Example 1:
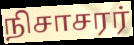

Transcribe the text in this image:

நிசாசரர்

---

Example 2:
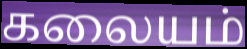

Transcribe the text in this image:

கலையம்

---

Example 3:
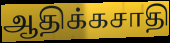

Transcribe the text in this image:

ஆதிக்கசாதி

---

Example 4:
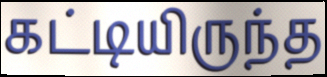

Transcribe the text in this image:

கட்டியிருந்த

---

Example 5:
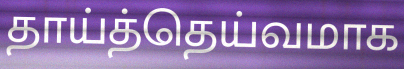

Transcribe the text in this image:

தாய்த்தெய்வமாக